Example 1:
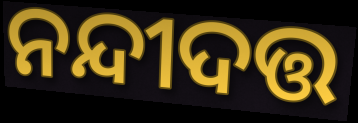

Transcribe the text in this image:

ନନ୍ଦୀଦତ୍ତ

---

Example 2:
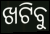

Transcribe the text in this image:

ଖଟିବୁ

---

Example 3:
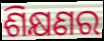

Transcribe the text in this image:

ଶିକ୍ଷଣର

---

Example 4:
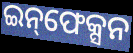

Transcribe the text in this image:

ଇନ୍‌ଫେକ୍ସନ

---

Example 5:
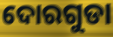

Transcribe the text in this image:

ଦୋରଗୁଡା